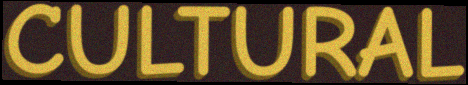
CULTURAL